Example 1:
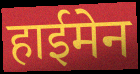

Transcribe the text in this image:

हाईमेन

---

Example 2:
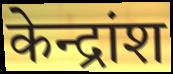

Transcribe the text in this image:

केन्द्रांश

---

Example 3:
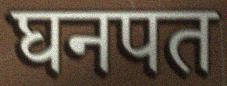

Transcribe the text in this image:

घनपत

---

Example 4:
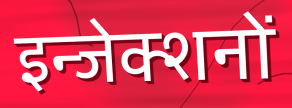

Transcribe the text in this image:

इन्जेक्शनों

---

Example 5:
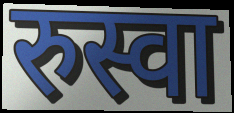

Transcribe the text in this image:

रुस्वा